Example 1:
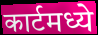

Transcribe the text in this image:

कार्टमध्ये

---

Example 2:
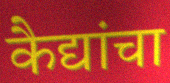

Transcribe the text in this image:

कैद्यांचा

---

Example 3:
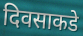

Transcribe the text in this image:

दिवसाकडे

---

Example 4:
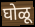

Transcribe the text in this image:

घोळू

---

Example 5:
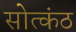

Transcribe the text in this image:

सोत्कंठ